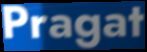
Pragat